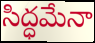
సిద్ధమేనా